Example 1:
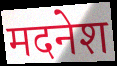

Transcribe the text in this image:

मदनेश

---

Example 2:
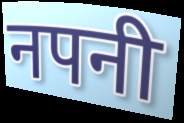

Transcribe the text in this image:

नपनी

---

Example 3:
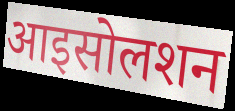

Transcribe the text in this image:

आइसोलशन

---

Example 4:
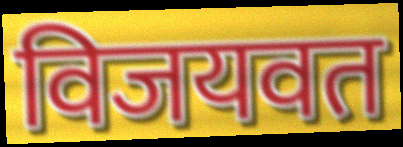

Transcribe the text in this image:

विजयवत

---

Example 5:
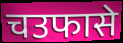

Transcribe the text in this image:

चउफासे